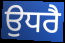
ਉਧਰੈ